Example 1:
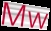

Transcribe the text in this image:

Mw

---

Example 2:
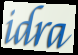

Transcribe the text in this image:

idra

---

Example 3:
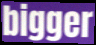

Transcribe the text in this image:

bigger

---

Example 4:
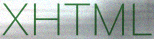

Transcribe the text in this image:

XHTML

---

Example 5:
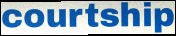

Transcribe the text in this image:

courtship